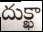
దుక్ఖా